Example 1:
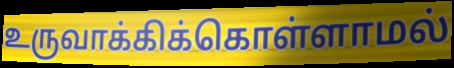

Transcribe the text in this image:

உருவாக்கிக்கொள்ளாமல்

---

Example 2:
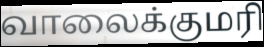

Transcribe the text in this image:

வாலைக்குமரி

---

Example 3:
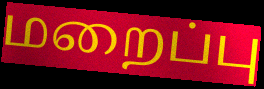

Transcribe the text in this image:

மறைப்பு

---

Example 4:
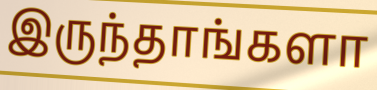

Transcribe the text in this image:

இருந்தாங்களா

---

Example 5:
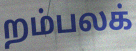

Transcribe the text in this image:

றம்பலக்